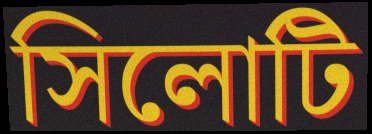
সিলোটি